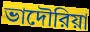
ভাদৌরিয়া